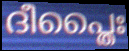
ദീപ്തൈഃ